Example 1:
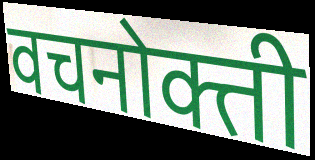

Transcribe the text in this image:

वचनोक्ती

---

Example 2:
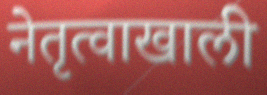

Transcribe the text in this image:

नेतृत्वाखाली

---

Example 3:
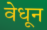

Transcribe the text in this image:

वेधून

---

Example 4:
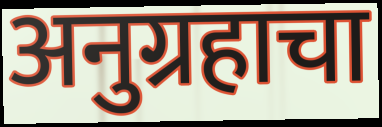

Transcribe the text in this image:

अनुग्रहाचा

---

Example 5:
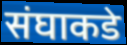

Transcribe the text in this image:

संघाकडे